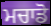
ਮਚਾਡੋ